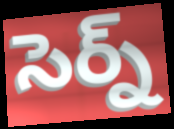
సెర్న్